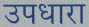
उपधारा